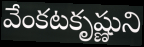
వేంకటకృష్ణుని